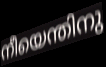
നീയെന്തിനു